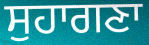
ਸੁਹਾਗਣਾ